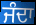
ਜੰਦਾ